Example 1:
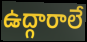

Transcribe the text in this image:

ఉద్గారాలే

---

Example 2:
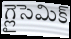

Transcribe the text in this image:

గ్లైసెమిక్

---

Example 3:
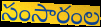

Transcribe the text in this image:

సంసారంల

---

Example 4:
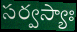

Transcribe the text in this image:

సర్వస్యాః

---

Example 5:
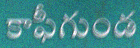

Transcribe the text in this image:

కాఫీగుండ